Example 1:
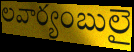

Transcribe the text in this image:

లవార్యంబులై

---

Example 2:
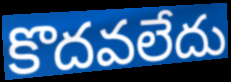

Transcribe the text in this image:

కొదవలేదు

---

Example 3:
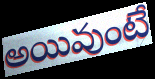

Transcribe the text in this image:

అయివుంటే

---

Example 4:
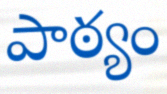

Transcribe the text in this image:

పాఠ్యం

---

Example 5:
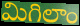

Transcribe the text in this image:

మిగిలాం